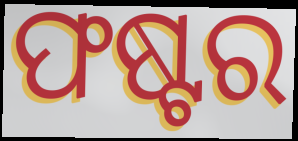
ଫଷ୍ଟର